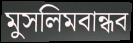
মুসলিমবান্ধব